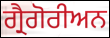
ਗ੍ਰੈਗੋਰੀਅਨ